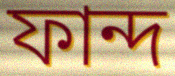
ফান্দ